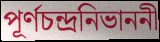
পূর্ণচন্দ্রনিভাননী